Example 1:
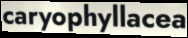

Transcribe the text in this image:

caryophyllacea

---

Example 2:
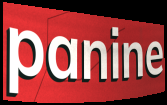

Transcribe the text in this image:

panine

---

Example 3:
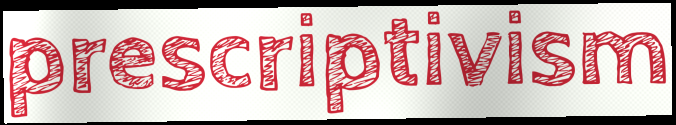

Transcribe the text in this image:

prescriptivism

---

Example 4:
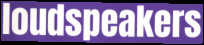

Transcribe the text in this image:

loudspeakers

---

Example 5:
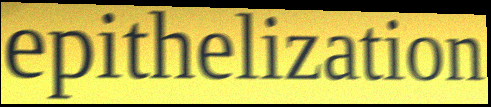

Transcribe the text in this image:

epithelization